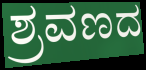
ಶ್ರವಣದ